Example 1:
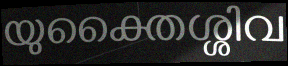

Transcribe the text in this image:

യുക്തൈശ്ശിവ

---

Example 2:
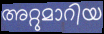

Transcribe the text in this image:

അറ്റുമാറിയ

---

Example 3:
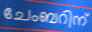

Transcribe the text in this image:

ചേംബറിന്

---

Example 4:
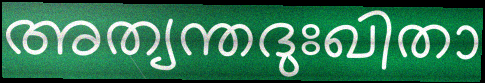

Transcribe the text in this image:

അത്യന്തദുഃഖിതാ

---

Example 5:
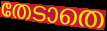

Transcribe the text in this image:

തേടാതെ